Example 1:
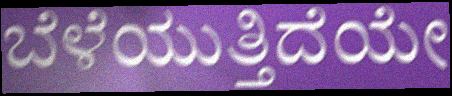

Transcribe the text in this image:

ಬೆಳೆಯುತ್ತಿದೆಯೇ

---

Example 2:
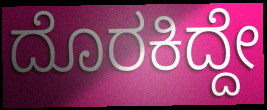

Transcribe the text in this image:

ದೊರಕಿದ್ದೇ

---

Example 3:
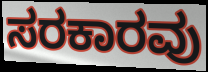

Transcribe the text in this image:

ಸರಕಾರವು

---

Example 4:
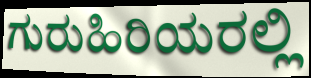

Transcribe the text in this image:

ಗುರುಹಿರಿಯರಲ್ಲಿ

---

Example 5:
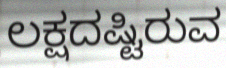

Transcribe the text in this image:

ಲಕ್ಷದಷ್ಟಿರುವ